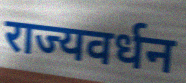
राज्यवर्धन